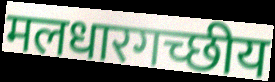
मलधारगच्छीय